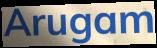
Arugam